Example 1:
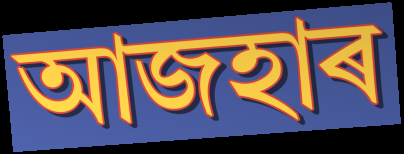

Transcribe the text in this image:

আজহাৰ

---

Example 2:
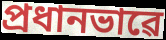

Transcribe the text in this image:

প্ৰধানভাৱে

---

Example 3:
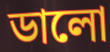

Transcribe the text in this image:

ডালো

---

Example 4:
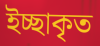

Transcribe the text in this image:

ইচ্ছাকৃত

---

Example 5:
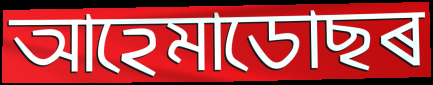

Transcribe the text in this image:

আহেমাডোছৰ